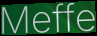
Meffe